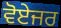
ਵੋਏਜਰ